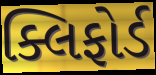
ક્લિફોર્ડ